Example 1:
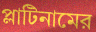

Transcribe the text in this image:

প্লাটিনামের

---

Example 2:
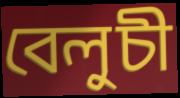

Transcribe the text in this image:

বেলুচী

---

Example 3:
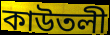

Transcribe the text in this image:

কাউতলী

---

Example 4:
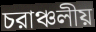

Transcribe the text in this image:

চরাঞ্চলীয়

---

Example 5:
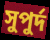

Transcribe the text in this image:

সুপুর্দ